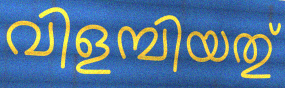
വിളമ്പിയതു്